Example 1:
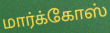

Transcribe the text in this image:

மார்க்கோஸ்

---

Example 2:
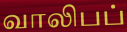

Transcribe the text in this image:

வாலிபப்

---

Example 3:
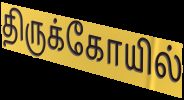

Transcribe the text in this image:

திருக்கோயில்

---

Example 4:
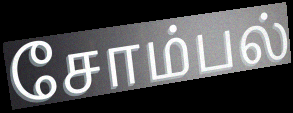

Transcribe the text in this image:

சோம்பல்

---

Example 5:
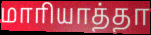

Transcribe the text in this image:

மாரியாத்தா